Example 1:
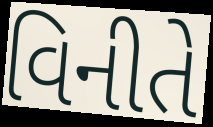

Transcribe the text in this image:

વિનીતે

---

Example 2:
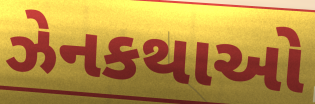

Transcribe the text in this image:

ઝેનકથાઓ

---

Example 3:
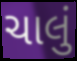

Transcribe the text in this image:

ચાલું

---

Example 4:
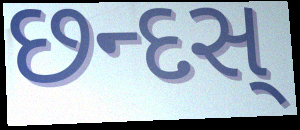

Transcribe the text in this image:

છન્દસ્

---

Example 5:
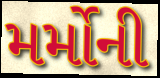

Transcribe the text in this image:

મર્મોની